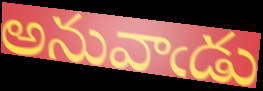
అనువాఁడు